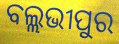
ବଲ୍ଲଭୀପୁର